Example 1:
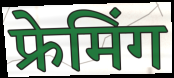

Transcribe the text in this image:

फ्रेमिंग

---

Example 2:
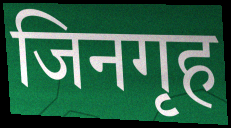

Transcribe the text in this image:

जिनगृह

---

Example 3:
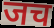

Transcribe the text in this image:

जच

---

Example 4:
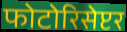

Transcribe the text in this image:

फोटोरिसेप्टर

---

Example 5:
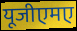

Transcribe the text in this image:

यूजीएमए